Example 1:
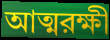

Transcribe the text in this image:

আত্মরক্ষী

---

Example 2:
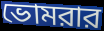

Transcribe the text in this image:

ভোমরার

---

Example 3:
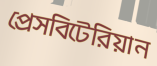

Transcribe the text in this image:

প্রেসবিটেরিয়ান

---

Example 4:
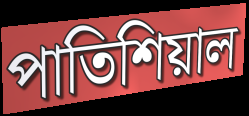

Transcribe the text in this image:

পাতিশিয়াল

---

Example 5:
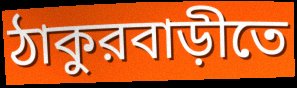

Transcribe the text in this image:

ঠাকুরবাড়ীতে